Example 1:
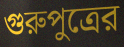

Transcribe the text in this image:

গুরুপুত্রের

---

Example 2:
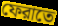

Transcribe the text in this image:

ফেরাতে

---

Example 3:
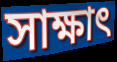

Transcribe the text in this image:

সাক্ষাৎ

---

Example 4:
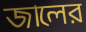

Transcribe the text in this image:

জালের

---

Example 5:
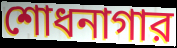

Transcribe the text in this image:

শোধনাগার